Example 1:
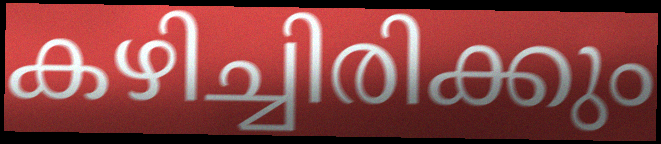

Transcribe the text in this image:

കഴിച്ചിരിക്കും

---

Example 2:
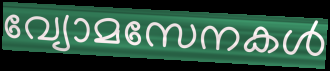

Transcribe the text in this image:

വ്യോമസേനകൾ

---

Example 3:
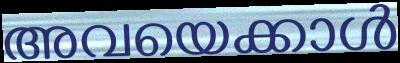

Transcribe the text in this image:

അവയെക്കാൾ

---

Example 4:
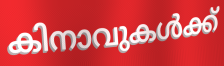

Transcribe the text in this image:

കിനാവുകൾക്ക്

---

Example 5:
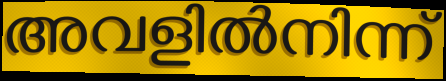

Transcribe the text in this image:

അവളിൽനിന്ന്